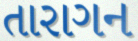
તારાગન